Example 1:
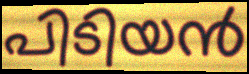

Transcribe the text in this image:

പിടിയൻ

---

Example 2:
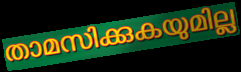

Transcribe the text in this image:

താമസിക്കുകയുമില്ല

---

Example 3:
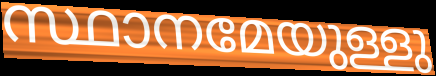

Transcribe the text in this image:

സ്ഥാനമേയുള്ളു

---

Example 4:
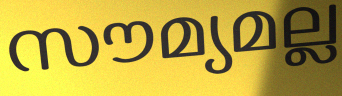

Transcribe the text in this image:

സൗമ്യമല്ല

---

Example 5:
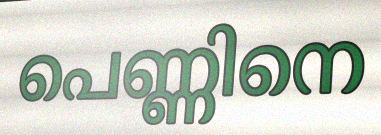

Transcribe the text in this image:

പെണ്ണിനെ